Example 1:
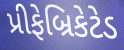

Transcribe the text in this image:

પ્રીફેબ્રિકેટેડ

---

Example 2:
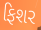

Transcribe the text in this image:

ફિશર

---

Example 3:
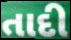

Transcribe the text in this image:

તાદી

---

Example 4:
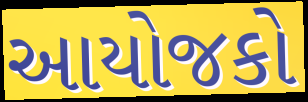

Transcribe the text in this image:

આયોજકો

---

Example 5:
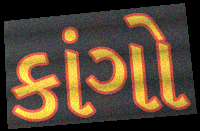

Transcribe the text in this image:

કાંગો